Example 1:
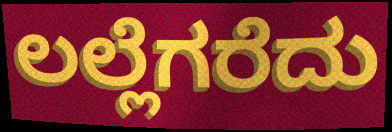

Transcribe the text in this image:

ಲಲ್ಲೆಗರೆದು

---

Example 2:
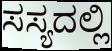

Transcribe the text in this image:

ಸಸ್ಯದಲ್ಲಿ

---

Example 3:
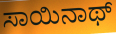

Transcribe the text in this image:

ಸಾಯಿನಾಥ್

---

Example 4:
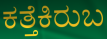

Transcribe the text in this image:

ಕತ್ತೆಕಿರುಬ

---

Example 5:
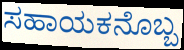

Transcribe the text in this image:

ಸಹಾಯಕನೊಬ್ಬ